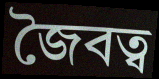
জৈবত্ব